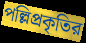
পল্লিপ্রকৃতির